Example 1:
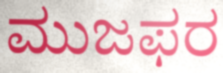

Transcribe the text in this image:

ಮುಜಫರ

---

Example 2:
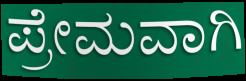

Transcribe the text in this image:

ಪ್ರೇಮವಾಗಿ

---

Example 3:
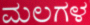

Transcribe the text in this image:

ಮಲಗಳ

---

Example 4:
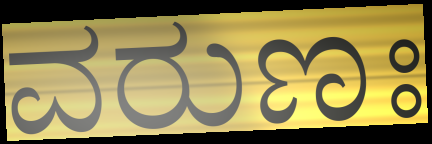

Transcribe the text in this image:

ವರುಣಃ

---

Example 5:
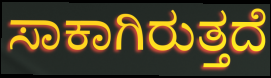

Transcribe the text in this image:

ಸಾಕಾಗಿರುತ್ತದೆ